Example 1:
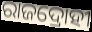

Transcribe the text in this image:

ରାଜଦ୍ରୋହୀ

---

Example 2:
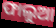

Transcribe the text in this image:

ଫାଲୁଆ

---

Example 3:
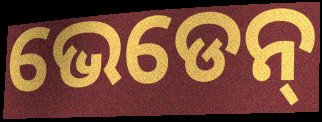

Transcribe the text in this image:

ଭେଡେନ୍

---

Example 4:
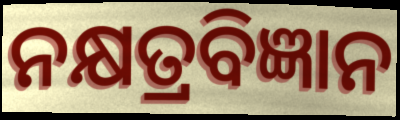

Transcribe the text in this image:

ନକ୍ଷତ୍ରବିଜ୍ଞାନ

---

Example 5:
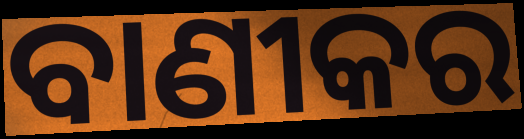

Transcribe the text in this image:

ବାଣୀକର